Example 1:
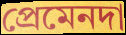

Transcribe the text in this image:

প্রেমেনদা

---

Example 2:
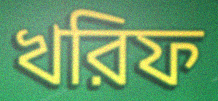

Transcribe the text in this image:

খরিফ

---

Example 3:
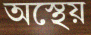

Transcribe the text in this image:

অস্থেয়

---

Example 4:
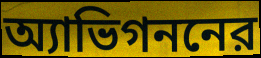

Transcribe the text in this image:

অ্যাভিগননের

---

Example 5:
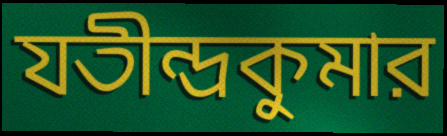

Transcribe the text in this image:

যতীন্দ্রকুমার